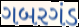
ગબરગંડ